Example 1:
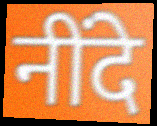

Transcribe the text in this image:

नींदे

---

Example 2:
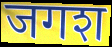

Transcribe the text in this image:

जगश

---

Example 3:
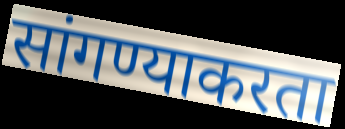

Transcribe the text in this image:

सांगण्याकरता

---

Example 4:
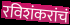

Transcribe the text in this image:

रविशंकरांचं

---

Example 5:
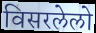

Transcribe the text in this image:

विसरलेलो